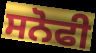
ਸਨੋਫੀ